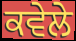
ਕਵੇਲੇ